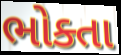
ભોક્તા